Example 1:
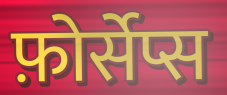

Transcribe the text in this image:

फ़ोर्सेप्स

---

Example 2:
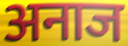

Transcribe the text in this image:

अनाज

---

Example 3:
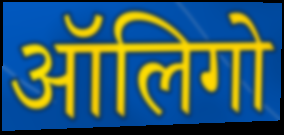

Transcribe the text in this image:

ऑलिगो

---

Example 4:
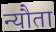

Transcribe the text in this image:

न्यौता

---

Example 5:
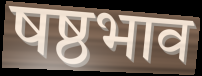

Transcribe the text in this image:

षष्ठभाव